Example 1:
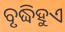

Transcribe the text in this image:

ବୃଦ୍ଧିହୁଏ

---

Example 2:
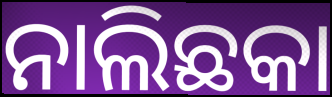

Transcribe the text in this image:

ନାଲିଛକା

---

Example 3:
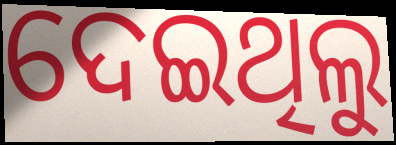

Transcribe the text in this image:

ଦେଇଥିଲୁ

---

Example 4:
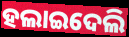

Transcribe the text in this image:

ହଲାଇଦେଲି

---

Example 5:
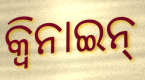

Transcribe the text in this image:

କ୍ୱିନାଇନ୍